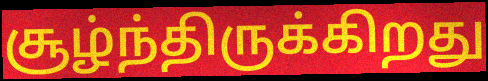
சூழ்ந்திருக்கிறது